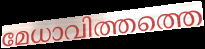
മേധാവിത്തത്തെ